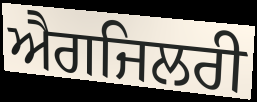
ਐਗਜਿਲਰੀ